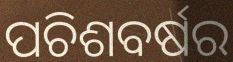
ପଚିଶବର୍ଷର